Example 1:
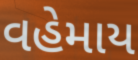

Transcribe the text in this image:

વહેમાય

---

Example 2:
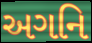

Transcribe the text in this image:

અગનિ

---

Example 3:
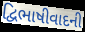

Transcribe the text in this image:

દ્વિભાષીવાદની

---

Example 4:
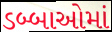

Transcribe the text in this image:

ડબ્બાઓમાં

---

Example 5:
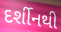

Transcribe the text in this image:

દર્શીનથી